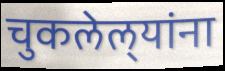
चुकलेल्यांना